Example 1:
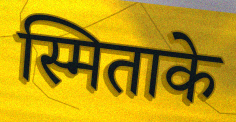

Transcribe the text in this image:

स्मिताके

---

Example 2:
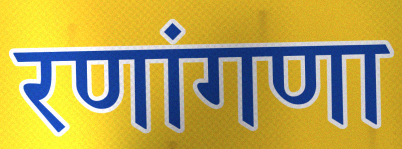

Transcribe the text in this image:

रणांगणा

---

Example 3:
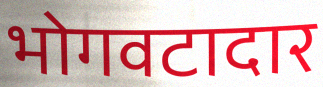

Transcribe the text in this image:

भोगवटादार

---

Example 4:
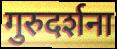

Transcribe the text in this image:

गुरुदर्शना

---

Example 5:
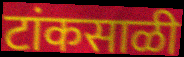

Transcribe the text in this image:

टांकसाळी